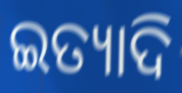
ଇତ୍ଯାଦି